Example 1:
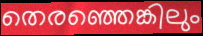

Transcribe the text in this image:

തെരഞ്ഞെങ്കിലും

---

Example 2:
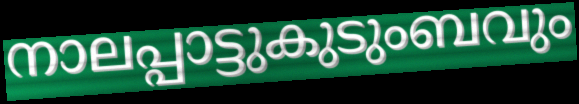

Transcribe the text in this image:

നാലപ്പാട്ടുകുടുംബവും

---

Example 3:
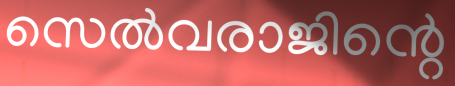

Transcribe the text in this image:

സെൽവരാജിന്റെ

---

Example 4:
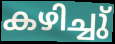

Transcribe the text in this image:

കഴിച്ചു്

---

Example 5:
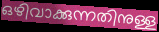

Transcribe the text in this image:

ഒഴിവാക്കുന്നതിനുള്ള